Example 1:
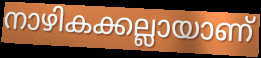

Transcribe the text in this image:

നാഴികക്കല്ലായാണ്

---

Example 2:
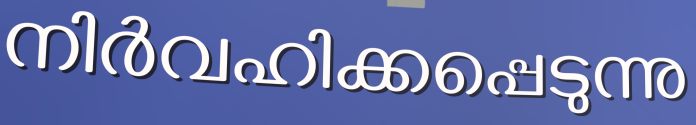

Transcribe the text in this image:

നിർവഹിക്കപ്പെടുന്നു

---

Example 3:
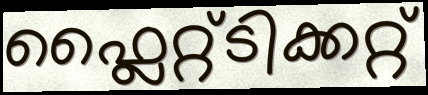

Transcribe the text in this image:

ഫ്ലൈറ്റ്ടിക്കറ്റ്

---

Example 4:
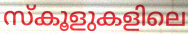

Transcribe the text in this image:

സ്കൂളുകളിലെ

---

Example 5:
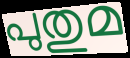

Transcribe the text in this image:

പുതുമ